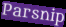
Parsnip